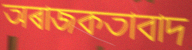
অৰাজকতাবাদ